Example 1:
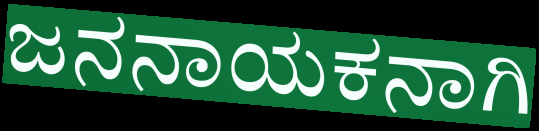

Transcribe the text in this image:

ಜನನಾಯಕನಾಗಿ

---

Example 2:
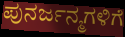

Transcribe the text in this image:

ಪುನರ್ಜನ್ಮಗಳಿಗೆ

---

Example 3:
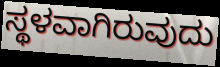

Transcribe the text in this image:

ಸ್ಥಳವಾಗಿರುವುದು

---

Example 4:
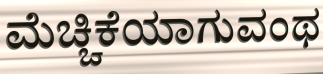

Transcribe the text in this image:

ಮೆಚ್ಚಿಕೆಯಾಗುವಂಥ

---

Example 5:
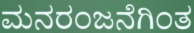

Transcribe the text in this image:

ಮನರಂಜನೆಗಿಂತ